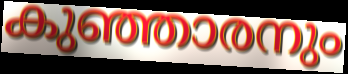
കുഞ്ഞാരനും